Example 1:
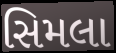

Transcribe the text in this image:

સિમલા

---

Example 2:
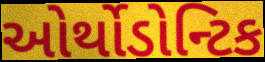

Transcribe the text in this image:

ઓર્થોડોન્ટિક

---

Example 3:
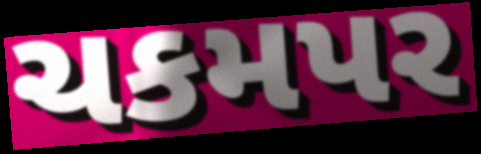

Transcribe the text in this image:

ચકમપર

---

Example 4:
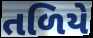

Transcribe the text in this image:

તળિયે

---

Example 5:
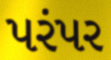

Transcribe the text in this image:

પરંપર